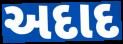
અદાદ